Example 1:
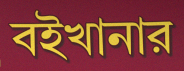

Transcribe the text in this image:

বইখানার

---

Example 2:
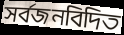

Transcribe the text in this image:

সর্বজনবিদিত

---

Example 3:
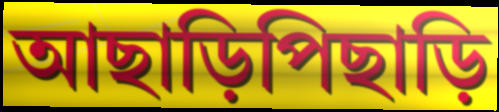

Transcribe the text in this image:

আছাড়িপিছাড়ি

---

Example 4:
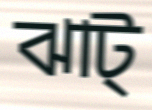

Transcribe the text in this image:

ঝাট্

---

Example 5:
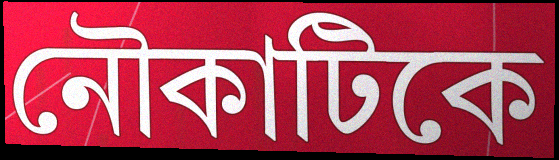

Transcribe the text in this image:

নৌকাটিকে